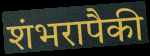
शंभरापैकी